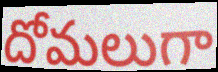
దోమలుగా